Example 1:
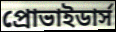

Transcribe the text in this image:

প্রোভাইডার্স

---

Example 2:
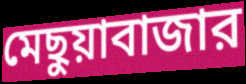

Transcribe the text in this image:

মেছুয়াবাজার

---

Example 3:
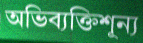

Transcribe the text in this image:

অভিব্যক্তিশূন্য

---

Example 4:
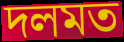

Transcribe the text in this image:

দলমত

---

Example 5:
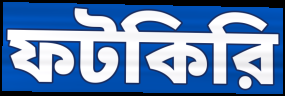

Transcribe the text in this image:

ফটকিরি